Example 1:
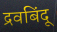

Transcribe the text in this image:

द्रवबिंदू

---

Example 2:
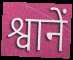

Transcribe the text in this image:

श्वानें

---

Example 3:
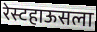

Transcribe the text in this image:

रेस्टहाऊसला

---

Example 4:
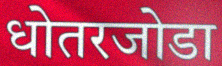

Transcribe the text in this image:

धोतरजोडा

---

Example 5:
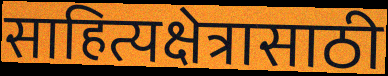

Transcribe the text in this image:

साहित्यक्षेत्रासाठी